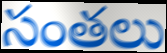
సంతలు